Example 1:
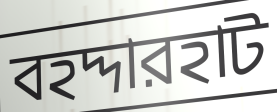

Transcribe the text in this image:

বহদ্দারহাট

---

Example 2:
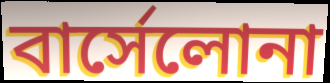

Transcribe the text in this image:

বার্সেলোনা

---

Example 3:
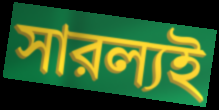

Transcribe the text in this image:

সারল্যই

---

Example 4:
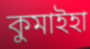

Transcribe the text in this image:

কুমাইহা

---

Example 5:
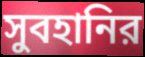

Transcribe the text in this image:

সুবহানির